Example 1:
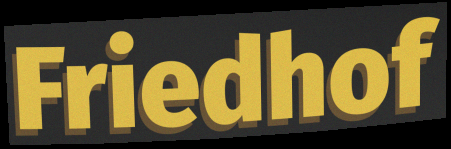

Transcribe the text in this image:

Friedhof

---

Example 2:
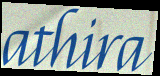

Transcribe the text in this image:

athira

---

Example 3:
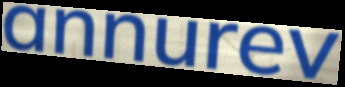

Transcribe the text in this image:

annurev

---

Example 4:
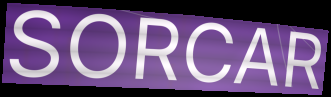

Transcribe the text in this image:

SORCAR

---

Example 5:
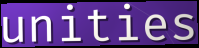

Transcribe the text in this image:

unities